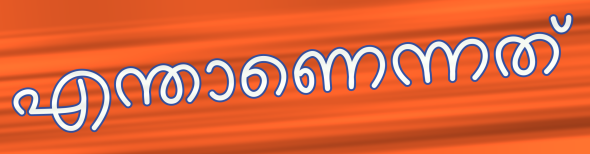
എന്താണെന്നത്